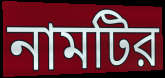
নামটির